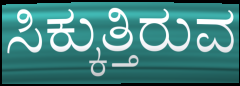
ಸಿಕ್ಕುತ್ತಿರುವ